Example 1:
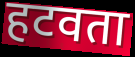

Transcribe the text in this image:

हटवता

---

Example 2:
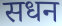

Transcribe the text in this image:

सधन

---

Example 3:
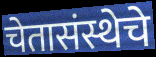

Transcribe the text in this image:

चेतासंस्थेचे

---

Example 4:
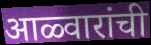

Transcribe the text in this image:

आळ्वारांची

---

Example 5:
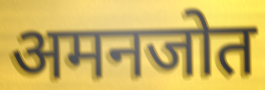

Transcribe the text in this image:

अमनजोत